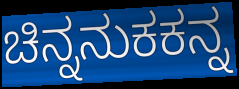
ಚಿನ್ನನುಕಕನ್ನ